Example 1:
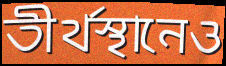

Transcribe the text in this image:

তীর্থস্থানেও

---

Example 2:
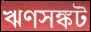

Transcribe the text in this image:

ঋণসঙ্কট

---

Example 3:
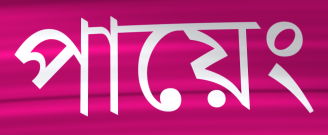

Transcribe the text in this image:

পায়েং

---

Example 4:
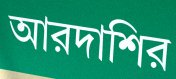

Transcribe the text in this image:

আরদাশির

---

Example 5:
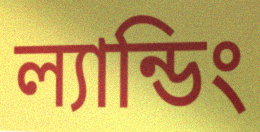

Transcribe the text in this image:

ল্যান্ডিং